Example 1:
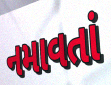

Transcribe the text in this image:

નમાવતાં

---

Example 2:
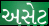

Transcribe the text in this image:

અસેટ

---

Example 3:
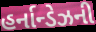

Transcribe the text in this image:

હર્નાન્ડેઝની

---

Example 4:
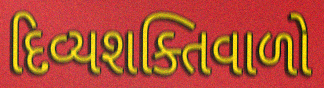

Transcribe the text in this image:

દિવ્યશક્તિવાળો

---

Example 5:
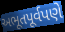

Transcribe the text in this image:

અભૂતપૂર્વપણે